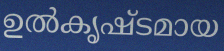
ഉൽകൃഷ്ടമായ